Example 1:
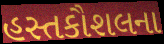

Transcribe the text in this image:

હસ્તકૌશલના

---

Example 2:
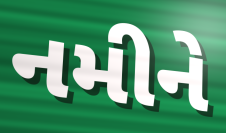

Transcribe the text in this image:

નમીને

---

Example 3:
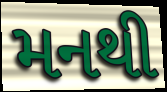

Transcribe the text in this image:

મનથી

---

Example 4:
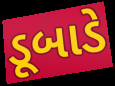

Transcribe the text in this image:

ડૂબાડે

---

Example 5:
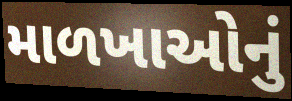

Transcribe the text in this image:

માળખાઓનું